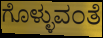
ಗೊಳ್ಳುವಂತೆ